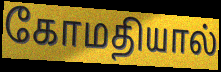
கோமதியால்